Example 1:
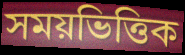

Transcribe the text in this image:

সময়ভিত্তিক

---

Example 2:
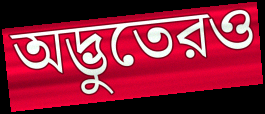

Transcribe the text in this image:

অদ্ভুতেরও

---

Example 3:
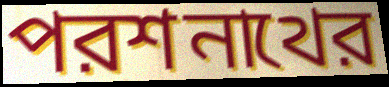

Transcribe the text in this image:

পরশনাথের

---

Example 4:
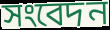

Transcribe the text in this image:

সংবেদন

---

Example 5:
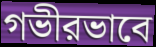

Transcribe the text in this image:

গভীরভাবে